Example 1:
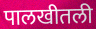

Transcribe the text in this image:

पालखीतली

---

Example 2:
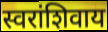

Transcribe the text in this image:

स्वरांशिवाय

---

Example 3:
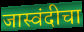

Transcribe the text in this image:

जास्वंदीचा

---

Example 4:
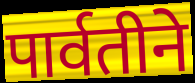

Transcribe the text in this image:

पार्वतीने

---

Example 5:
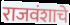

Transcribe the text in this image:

राजवंशाचे